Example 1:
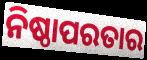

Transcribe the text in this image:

ନିଷ୍ଠାପରତାର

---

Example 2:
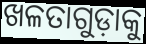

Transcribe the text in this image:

ଖଳତାଗୁଡ଼ାକୁ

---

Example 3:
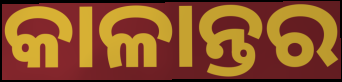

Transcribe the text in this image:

କାଳାନ୍ତର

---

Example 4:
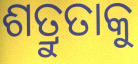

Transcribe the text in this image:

ଶତ୍ରୁତାକୁ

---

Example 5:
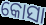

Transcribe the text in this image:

କୋସା